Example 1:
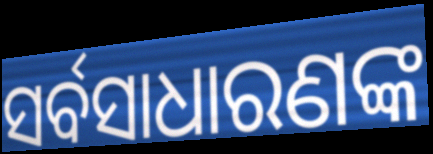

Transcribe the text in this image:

ସର୍ବସାଧାରଣଙ୍କ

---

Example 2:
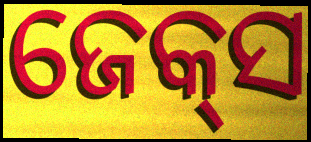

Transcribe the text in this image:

ଜେକ୍‍ସ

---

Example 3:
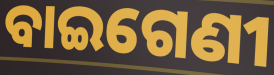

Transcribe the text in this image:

ବାଇଗେଣୀ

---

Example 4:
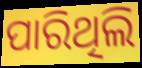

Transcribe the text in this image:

ପାରିଥିଲି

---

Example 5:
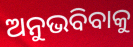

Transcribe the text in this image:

ଅନୁଭବିବାକୁ